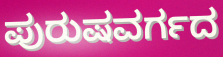
ಪುರುಷವರ್ಗದ